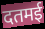
दतमई